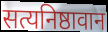
सत्यनिष्ठावान